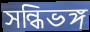
সন্ধিভঙ্গ